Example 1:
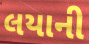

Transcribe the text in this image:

લયાની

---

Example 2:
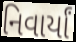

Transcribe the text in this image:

નિવાર્યાં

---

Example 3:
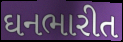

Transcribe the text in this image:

ઘનભારીત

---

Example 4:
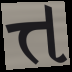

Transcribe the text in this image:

ત્ત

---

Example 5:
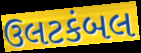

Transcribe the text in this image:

ઉલટકંબલ